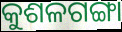
କୁଶଳଗଙ୍ଗା